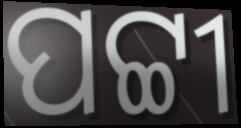
ପଟ୍ଟୀ